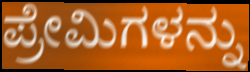
ಪ್ರೇಮಿಗಳನ್ನು